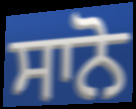
ਸਾਨੋ